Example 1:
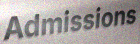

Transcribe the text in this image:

Admissions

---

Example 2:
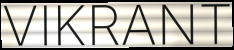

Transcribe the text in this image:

VIKRANT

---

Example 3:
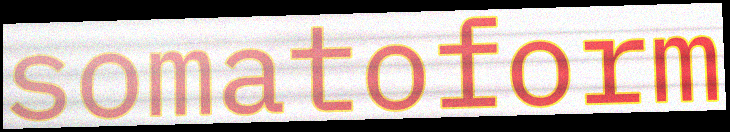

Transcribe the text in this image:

somatoform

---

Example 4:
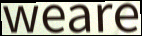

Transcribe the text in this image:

weare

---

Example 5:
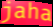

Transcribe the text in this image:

jaha